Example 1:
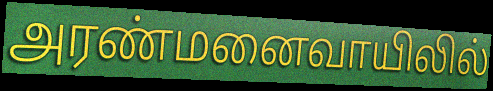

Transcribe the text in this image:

அரண்மனைவாயிலில்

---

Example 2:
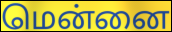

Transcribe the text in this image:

மென்னை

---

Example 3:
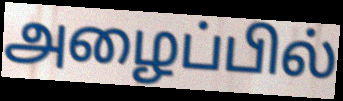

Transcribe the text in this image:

அழைப்பில்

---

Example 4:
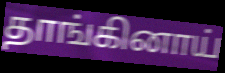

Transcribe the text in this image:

தாங்கினாய்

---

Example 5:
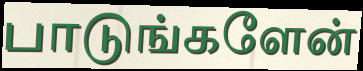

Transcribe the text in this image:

பாடுங்களேன்